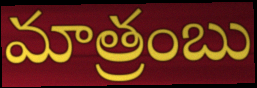
మాత్రంబు